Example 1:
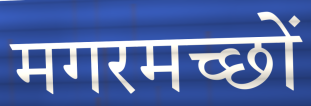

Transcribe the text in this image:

मगरमच्छों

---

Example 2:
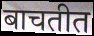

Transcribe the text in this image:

बाचतीत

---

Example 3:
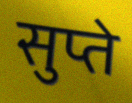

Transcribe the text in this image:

सुप्ते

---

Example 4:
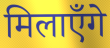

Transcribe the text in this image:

मिलाएँगे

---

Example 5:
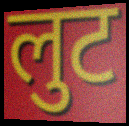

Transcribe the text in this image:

लुट